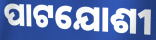
ପାଟଯୋଶୀ